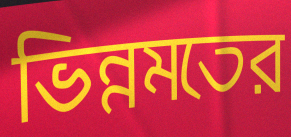
ভিন্নমতের